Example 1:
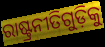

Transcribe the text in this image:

ରାଷ୍ଟ୍ରନୀତିଗୁଡ଼ିକୁ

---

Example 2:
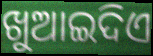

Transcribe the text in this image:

ଖୁଆଇଦିଏ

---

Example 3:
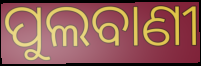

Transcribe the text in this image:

ପୁଲବାଣୀ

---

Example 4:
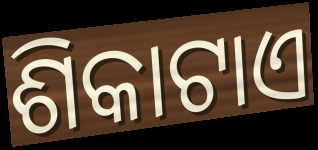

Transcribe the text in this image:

ଶିକାଟାଏ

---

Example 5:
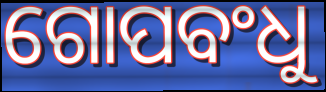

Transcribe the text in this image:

ଗୋପବଂଧୁ